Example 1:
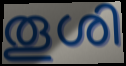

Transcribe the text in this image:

തൂശി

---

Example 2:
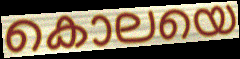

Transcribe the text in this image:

കൊലയെ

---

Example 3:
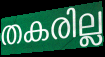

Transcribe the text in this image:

തകരില്ല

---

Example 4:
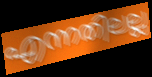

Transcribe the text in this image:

എന്നതിലല്ല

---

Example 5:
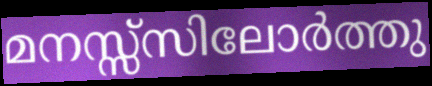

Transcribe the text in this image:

മനസ്സ്സിലോർത്തു